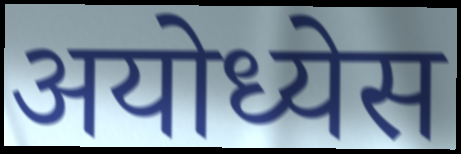
अयोध्येस